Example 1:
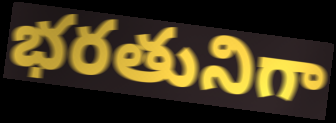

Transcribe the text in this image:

భరతునిగా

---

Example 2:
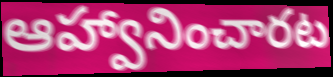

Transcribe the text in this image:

ఆహ్వానించారట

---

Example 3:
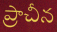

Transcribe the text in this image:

ప్రాచీన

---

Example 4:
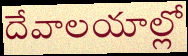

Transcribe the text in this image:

దేవాలయాల్లో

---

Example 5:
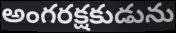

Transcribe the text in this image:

అంగరక్షకుడును